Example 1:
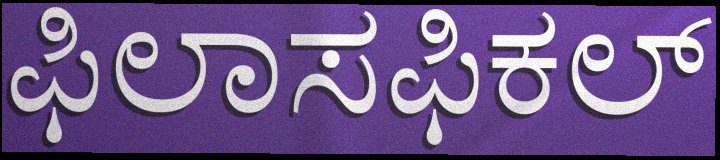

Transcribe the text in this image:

ಫಿಲಾಸಫಿಕಲ್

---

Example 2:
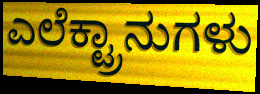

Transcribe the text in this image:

ಎಲೆಕ್ಟ್ರಾನುಗಳು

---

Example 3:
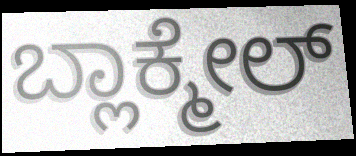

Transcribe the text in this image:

ಬ್ಲಾಕ್ಮೇಲ್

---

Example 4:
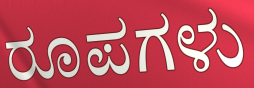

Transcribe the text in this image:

ರೂಪಗಳು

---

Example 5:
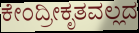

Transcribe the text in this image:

ಕೇಂದ್ರೀಕೃತವಲ್ಲದ